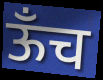
ऊँच